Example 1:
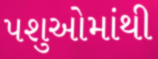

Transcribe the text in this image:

પશુઓમાંથી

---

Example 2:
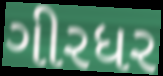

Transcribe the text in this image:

ગીરધર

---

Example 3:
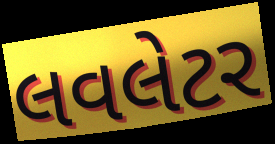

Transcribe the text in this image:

લવલેટર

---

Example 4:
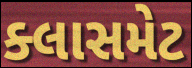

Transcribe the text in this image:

ક્લાસમેટ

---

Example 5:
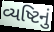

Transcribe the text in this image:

વ્યષ્ટિનું